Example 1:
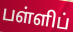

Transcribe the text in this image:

பள்ளிப்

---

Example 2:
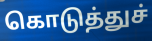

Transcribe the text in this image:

கொடுத்துச்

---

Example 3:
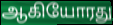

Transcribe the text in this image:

ஆகியோரது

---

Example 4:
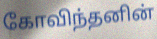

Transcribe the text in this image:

கோவிந்தனின்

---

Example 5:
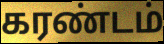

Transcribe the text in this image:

கரண்டம்